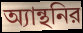
অ্যান্থনির